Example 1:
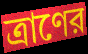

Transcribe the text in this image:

ত্রাণের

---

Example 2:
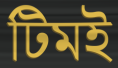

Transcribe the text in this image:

টিমই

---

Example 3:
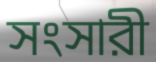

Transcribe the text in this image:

সংসারী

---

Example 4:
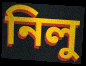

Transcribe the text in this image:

নিলু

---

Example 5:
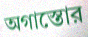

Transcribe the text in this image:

অগাস্তোর